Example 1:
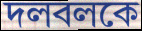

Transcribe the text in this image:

দলবলকে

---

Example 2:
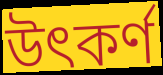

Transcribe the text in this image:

উৎকর্ণ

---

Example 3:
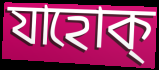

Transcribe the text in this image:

যাহোক্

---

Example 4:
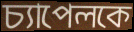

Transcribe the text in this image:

চ্যাপেলকে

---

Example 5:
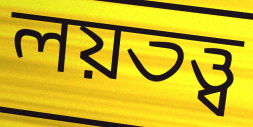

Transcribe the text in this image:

লয়তত্ত্ব